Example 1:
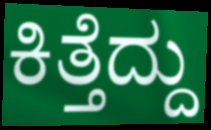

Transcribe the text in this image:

ಕಿತ್ತೆದ್ದು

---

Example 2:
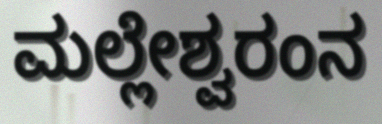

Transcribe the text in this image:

ಮಲ್ಲೇಶ್ವರಂನ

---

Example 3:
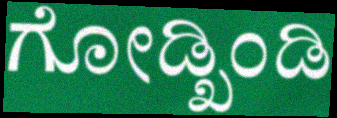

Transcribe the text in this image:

ಗೋಡ್ಖಿಂಡಿ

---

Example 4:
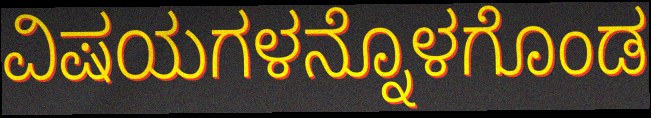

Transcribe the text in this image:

ವಿಷಯಗಳನ್ನೊಳಗೊಂಡ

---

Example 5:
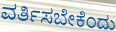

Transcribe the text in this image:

ವರ್ತಿಸಬೇಕೆಂದು